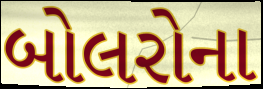
બોલરોના